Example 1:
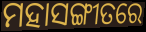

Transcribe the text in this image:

ମହାସଙ୍ଗୀତରେ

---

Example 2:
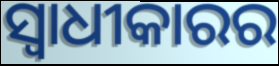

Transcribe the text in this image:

ସ୍ୱାଧୀକାରର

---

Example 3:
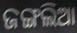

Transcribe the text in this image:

ଜଙ୍ଗଲିଆ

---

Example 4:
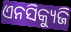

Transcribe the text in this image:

ଏନସିକ୍ୟୁଜି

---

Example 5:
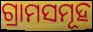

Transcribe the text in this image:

ଗ୍ରାମସମୂହ